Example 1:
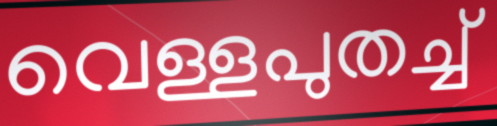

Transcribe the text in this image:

വെള്ളപുതച്ച്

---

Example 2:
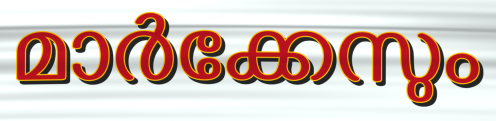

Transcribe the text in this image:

മാർക്കേസും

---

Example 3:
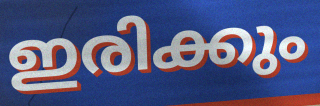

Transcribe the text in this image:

ഇരിക്കും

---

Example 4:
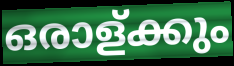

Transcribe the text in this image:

ഒരാള്ക്കും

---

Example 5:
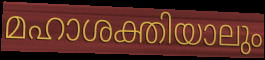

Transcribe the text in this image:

മഹാശക്തിയാലും